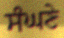
ਸੰਘਣੇ